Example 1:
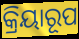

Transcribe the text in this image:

କ୍ରିୟାରୂପ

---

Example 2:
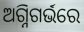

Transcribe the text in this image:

ଅଗ୍ନିଗର୍ଭରେ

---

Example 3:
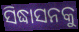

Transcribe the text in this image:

ସିଦ୍ଧାସନକୁ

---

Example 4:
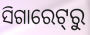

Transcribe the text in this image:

ସିଗାରେଟ୍‌ରୁ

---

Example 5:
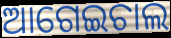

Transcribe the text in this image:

ଆଗେଇଚାଲ